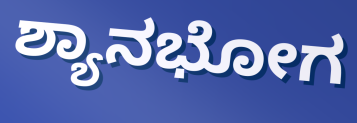
ಶ್ಯಾನಭೋಗ